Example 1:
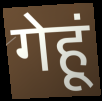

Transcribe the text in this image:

गेहूं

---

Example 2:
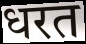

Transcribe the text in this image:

धरत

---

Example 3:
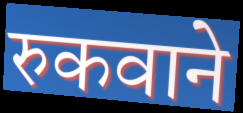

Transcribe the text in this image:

रुकवाने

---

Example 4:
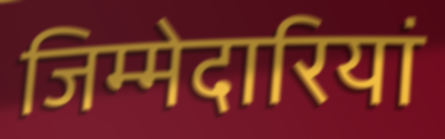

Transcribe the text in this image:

जिम्मेदारियां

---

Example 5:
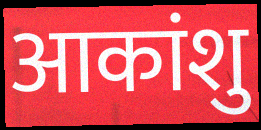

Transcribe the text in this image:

आकांशु